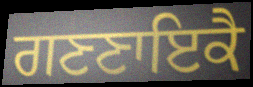
ਗਣਣਾਇਕੈ